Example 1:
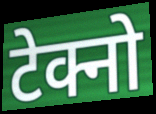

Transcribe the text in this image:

टेक्नो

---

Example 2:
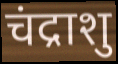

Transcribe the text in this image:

चंद्राशु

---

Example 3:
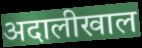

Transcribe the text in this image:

अदालीखाल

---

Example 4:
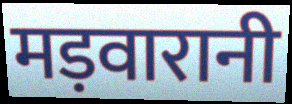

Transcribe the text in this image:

मड़वारानी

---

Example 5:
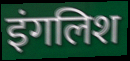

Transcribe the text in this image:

इंगलिश